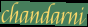
chandarni